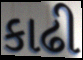
કાઢી